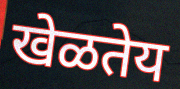
खेळतेय